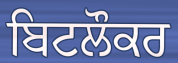
ਬਿਟਲੌਕਰ